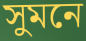
সুমনে